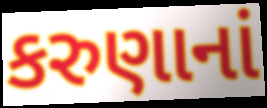
કરુણાનાં